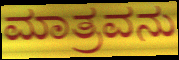
ಮಾತ್ರವನು